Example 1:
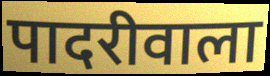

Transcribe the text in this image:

पादरीवाला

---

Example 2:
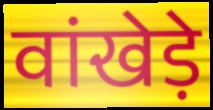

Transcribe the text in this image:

वांखेड़े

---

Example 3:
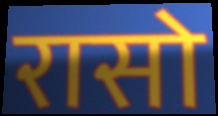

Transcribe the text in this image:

रासो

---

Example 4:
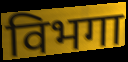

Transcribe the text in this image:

विभगा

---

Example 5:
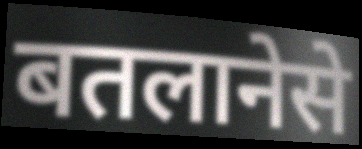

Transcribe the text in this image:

बतलानेसे